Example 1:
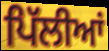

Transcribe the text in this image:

ਪਿੱਲੀਆਂ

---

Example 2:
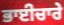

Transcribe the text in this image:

ਭਾਈਚਾਰੇ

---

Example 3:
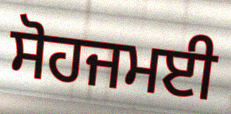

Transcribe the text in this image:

ਸੋਹਜਮਈ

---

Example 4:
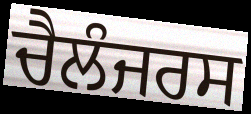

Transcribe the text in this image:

ਚੈਲੰਜਰਸ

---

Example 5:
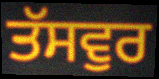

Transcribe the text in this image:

ਤੱਸਵੁਰ